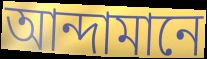
আন্দামানে